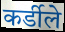
कर्डीले